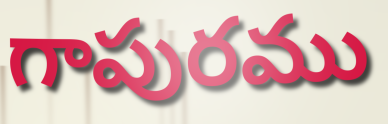
గాపురము